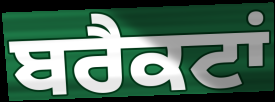
ਬਰੈਕਟਾਂ